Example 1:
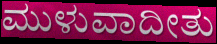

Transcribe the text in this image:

ಮುಳುವಾದೀತು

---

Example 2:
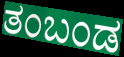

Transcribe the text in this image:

ತಂಬಂಡ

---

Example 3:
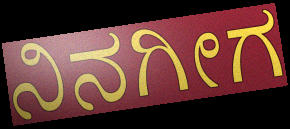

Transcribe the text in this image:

ನಿನಗೀಗ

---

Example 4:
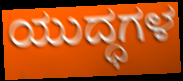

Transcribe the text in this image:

ಯುದ್ಧಗಳ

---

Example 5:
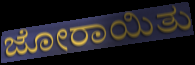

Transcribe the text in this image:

ಜೋರಾಯಿತು